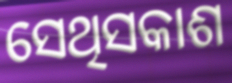
ସେଥିସକାଶ